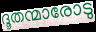
ദൂതന്മാരോടു